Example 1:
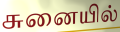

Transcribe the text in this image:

சுனையில்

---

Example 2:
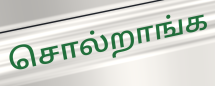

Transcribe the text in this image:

சொல்றாங்க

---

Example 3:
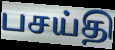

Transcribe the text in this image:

பசய்தி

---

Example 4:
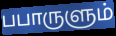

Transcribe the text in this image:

பபாருளும்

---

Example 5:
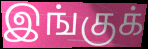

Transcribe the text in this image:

இங்குக்